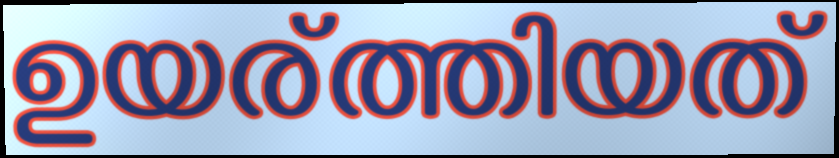
ഉയര്ത്തിയത്